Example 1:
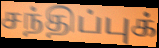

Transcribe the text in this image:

சந்திப்புக்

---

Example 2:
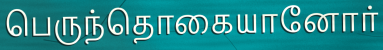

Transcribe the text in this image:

பெருந்தொகையானோர்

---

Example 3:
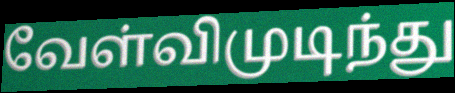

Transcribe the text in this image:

வேள்விமுடிந்து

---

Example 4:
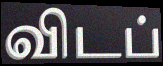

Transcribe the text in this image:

விடப்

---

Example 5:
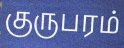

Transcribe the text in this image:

குருபரம்